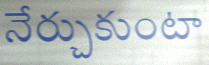
నేర్చుకుంటా